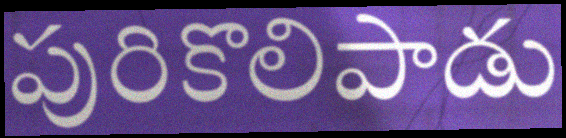
పురికొలిపాడు